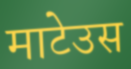
माटेउस